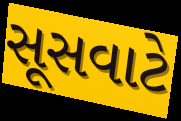
સૂસવાટે